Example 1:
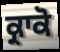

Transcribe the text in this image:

ਕ੍ਰਾਕੋ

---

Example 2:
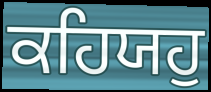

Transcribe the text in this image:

ਕਹਿਯਹੁ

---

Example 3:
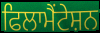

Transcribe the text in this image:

ਫਿਲਾਮੈਂਟੇਸ਼ਨ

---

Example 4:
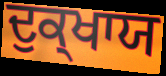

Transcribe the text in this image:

ਦੁਕ੍ਖਾਯ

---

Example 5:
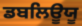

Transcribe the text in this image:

ਡਬਲਿਊਯੂ